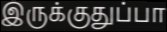
இருக்குதுப்பா